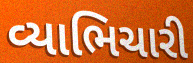
વ્યાભિચારી